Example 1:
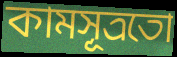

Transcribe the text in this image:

কামসূত্ৰতো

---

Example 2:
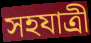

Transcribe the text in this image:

সহযাত্ৰী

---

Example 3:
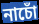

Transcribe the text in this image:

নাচোঁ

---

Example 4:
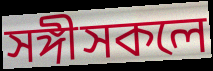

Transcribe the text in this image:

সঙ্গীসকলে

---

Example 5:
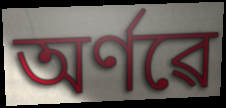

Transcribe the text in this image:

অৰ্ণৱে